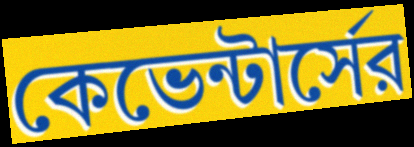
কেভেন্টার্সের